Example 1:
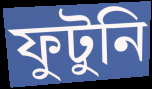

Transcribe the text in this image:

ফুটুনি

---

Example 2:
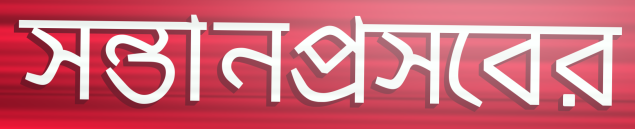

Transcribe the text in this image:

সন্তানপ্রসবের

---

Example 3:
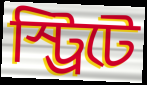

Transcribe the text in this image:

স্ট্রিটে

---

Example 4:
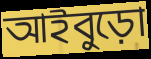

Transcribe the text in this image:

আইবুড়ো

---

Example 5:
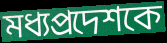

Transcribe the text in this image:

মধ্যপ্রদেশকে